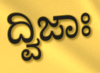
ದ್ವಿಜಾಃ